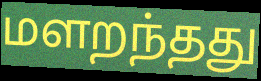
மளறந்தது